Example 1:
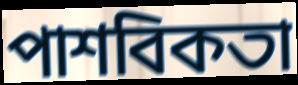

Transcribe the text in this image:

পাশবিকতা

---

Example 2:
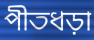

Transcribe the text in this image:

পীতধড়া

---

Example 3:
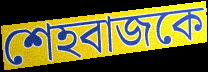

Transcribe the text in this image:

শেহবাজকে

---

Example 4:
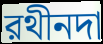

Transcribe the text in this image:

রথীনদা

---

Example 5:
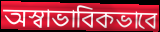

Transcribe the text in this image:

অস্বাভাবিকভাবে